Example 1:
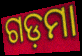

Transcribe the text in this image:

ଗଡ଼ମା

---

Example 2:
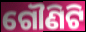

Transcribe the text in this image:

ଗୌଣିଟି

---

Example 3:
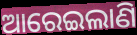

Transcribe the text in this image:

ଆରେଇଲାଣି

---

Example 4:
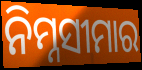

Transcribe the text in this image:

ନିମ୍ନସୀମାର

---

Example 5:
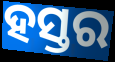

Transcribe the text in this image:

ହସ୍ତର